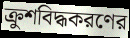
ক্রুশবিদ্ধকরণের